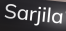
Sarjila